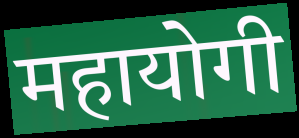
महायोगी